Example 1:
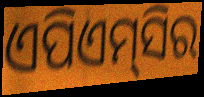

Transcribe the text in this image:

ଏପିଏମ୍‌ସିର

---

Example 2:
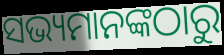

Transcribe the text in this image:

ସଭ୍ୟମାନଙ୍କଠାରୁ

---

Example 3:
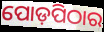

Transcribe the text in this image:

ପୋଡ଼ପିଠାର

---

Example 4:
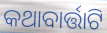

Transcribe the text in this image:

କଥାବାର୍ତ୍ତାଟି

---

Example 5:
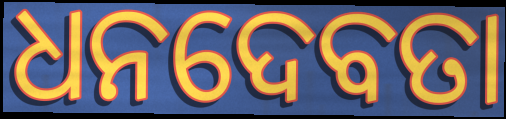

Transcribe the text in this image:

ଧନଦେବତା